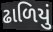
ઢાળિયું